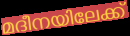
മദീനയിലേക്ക്